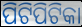
ପିଟିପିଟିକା